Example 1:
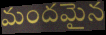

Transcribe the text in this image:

మందమైన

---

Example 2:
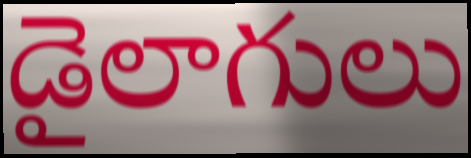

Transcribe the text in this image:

డైలాగులు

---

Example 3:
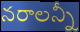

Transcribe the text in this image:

నరాలన్నీ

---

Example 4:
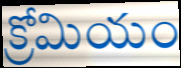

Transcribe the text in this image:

క్రోమియం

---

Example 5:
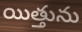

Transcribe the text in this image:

యిత్తును